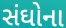
સંઘોના